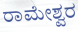
ರಾಮೇಶ್ವರ